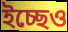
ইচ্ছেও